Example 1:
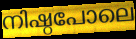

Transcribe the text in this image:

നിഷ്ഠപോലെ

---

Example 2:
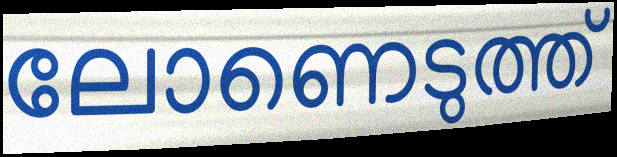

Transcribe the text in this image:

ലോണെടുത്ത്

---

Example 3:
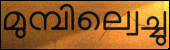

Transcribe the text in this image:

മുമ്പില്വെച്ചു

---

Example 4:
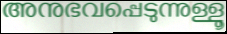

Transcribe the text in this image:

അനുഭവപ്പെടുന്നുള്ളൂ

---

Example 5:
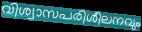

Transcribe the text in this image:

വിശ്വാസപരിശീലനവും